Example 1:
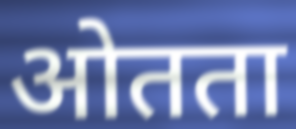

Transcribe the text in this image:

ओतता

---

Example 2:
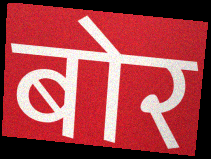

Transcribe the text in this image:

बोर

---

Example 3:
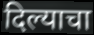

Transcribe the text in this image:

दिल्याचा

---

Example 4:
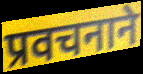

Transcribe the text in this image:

प्रवचनाने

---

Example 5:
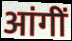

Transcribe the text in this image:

आंगीं